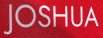
JOSHUA